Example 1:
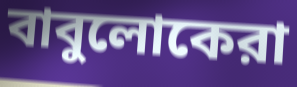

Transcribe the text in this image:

বাবুলোকেরা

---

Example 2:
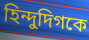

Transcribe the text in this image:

হিন্দুদিগকে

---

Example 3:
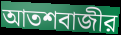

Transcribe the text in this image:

আতশবাজীর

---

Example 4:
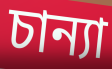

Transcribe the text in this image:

চান্যা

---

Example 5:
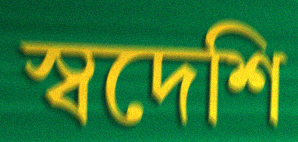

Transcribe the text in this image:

স্বদেশি